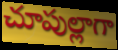
చూపుల్లాగా